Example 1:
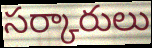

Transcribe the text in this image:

సర్కారులు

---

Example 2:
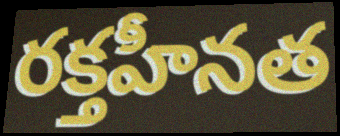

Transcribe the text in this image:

రక్తహీనత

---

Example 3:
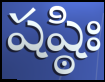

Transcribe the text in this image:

షష్ఠిః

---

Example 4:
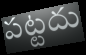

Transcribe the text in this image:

పట్టదు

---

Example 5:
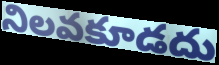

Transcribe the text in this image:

నిలవకూడదు